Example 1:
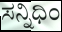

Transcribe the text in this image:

ಸನ್ನಿಧಿಂ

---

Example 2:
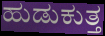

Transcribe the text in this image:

ಹುಡುಕುತ್ತ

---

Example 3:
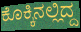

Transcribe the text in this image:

ಕೊಕ್ಕಿನಲ್ಲಿದ್ದ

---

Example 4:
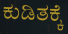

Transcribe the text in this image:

ಕುಡಿತಕ್ಕೆ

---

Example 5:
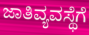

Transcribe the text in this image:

ಜಾತಿವ್ಯವಸ್ಥೆಗೆ